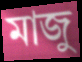
মাজু